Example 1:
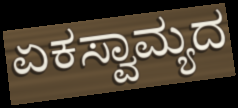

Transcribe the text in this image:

ಏಕಸ್ವಾಮ್ಯದ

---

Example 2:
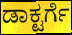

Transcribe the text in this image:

ಡಾಕ್ಟರ್ಗೆ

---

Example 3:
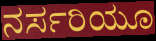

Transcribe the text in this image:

ನರ್ಸರಿಯೂ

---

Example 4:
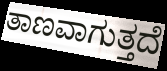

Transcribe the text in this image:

ತಾಣವಾಗುತ್ತದೆ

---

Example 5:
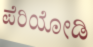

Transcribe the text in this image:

ಪೆರಿಯೋಡಿ